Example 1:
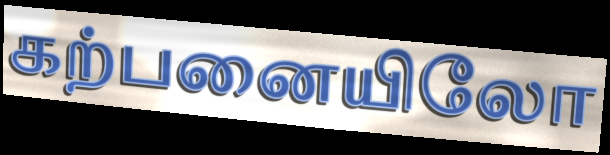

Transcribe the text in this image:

கற்பனையிலோ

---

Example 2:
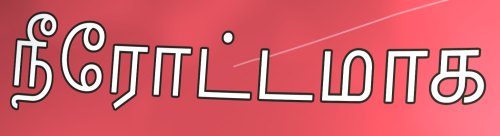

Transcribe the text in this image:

நீரோட்டமாக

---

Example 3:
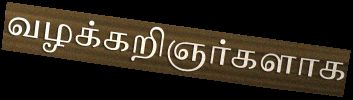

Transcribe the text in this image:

வழக்கறிஞர்களாக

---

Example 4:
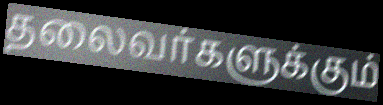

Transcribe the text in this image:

தலைவர்களுக்கும்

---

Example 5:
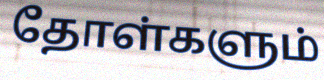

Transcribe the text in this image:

தோள்களும்